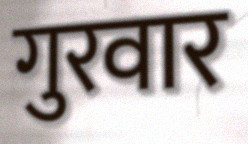
गुरवार